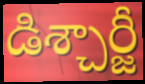
డిశ్చార్జీ